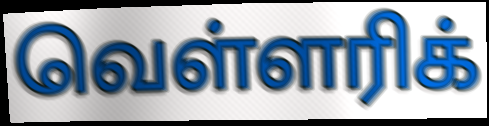
வெள்ளரிக்